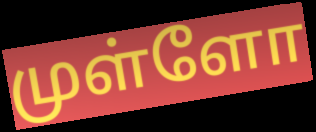
முள்ளோ